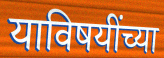
याविषयींच्या